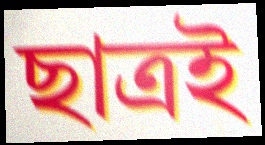
ছাত্রই